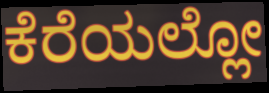
ಕೆರೆಯಲ್ಲೋ